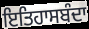
ਇਤਿਹਾਸਬੰਦਾ